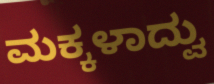
ಮಕ್ಕಳಾದ್ವು